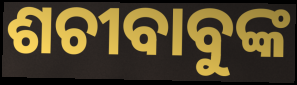
ଶଚୀବାବୁଙ୍କ